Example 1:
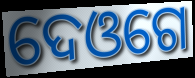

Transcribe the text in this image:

ଦେଓଗେ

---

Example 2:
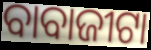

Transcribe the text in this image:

ବାବାଜୀଟା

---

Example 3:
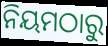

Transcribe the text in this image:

ନିୟମଠାରୁ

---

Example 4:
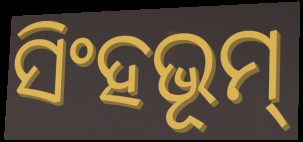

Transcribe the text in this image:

ସିଂହଭୂମ୍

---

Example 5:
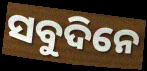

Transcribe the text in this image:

ସବୁଦିନେ